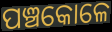
ପଞ୍ଚକୋଳେ